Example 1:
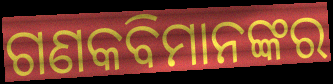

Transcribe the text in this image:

ଗଣକବିମାନଙ୍କର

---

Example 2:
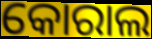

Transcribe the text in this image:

କୋରାଲ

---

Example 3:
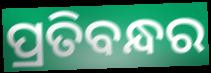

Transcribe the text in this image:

ପ୍ରତିବନ୍ଧର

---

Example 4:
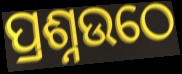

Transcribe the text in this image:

ପ୍ରଶ୍ନଉଠେ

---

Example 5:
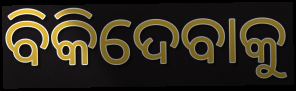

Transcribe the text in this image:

ବିକିଦେବାକୁ